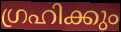
ഗ്രഹിക്കും